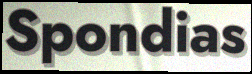
Spondias